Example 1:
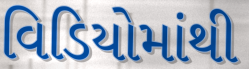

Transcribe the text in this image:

વિડિયોમાંથી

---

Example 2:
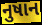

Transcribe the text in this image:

નુષાન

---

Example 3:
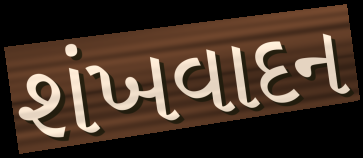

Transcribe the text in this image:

શંખવાદન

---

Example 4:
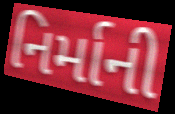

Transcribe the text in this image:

નિર્માની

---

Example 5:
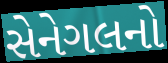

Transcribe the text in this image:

સેનેગલનો